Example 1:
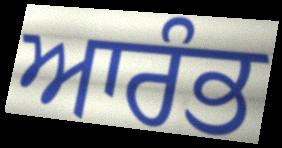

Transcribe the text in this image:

ਆਰੰਭ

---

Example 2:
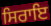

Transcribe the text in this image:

ਸਿਰਾਇ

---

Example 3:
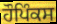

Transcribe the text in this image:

ਹੌਪਿੰਕਸ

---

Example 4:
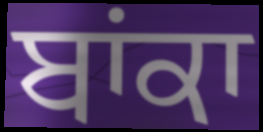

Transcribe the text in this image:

ਬਾਂਕਾ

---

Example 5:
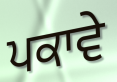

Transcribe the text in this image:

ਪਕਾਵੇ